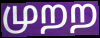
முறற